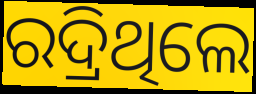
ରଦ୍ରିଥିଲେ